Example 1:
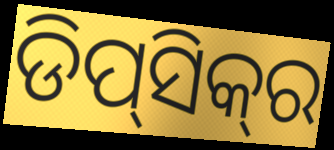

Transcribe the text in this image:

ଡିପ୍‌ସିକ୍‌ର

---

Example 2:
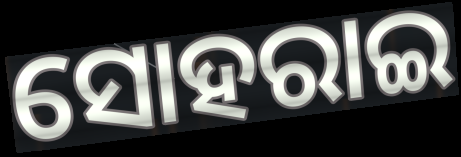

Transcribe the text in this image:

ସୋହରାଇ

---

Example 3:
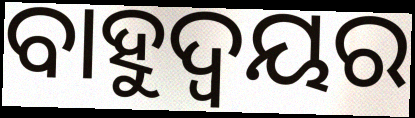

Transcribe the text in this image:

ବାହୁଦ୍ୱୟର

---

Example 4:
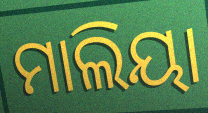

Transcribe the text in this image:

ମାଲିୟା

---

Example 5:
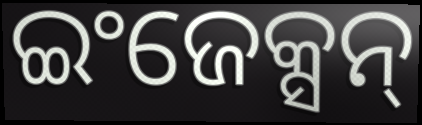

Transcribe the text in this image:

ଇଂଜେକ୍ସନ୍